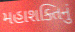
મહાશક્તિનું